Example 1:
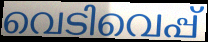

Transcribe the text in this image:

വെടിവെപ്പ്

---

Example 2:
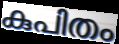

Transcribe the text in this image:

കുപിതം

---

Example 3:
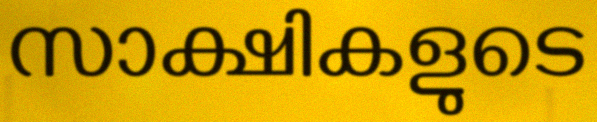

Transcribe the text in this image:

സാക്ഷികളുടെ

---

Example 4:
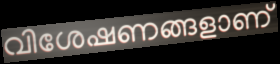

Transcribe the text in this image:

വിശേഷണങ്ങളാണ്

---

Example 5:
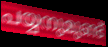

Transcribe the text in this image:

പയ്യനുമുണ്ട്